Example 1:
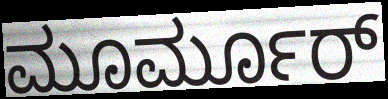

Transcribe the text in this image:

ಮೂರ್ಮೂರ್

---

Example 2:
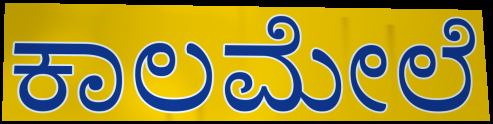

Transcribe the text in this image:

ಕಾಲಮೇಲೆ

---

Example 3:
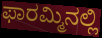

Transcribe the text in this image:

ಫಾರಮ್ಮಿನಲ್ಲಿ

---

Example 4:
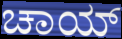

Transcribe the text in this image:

ಚಾಯ್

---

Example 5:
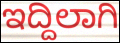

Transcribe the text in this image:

ಇದ್ದಿಲಾಗಿ